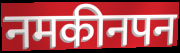
नमकीनपन